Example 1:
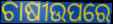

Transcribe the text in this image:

ଚାଷୀଉପରେ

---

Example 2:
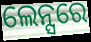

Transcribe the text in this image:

ଲେନ୍ସରେ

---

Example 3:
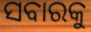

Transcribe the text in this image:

ସବାରକୁ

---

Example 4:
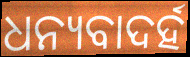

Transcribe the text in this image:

ଧନ୍ୟବାଦର୍ହ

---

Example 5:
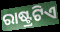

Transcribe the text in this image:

ରାଷ୍ଟ୍ରଟିଏ